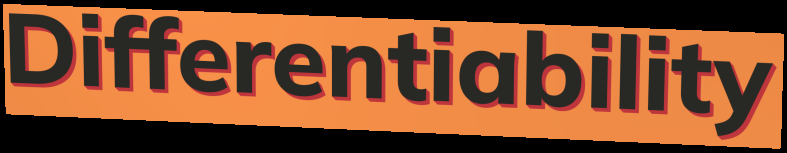
Differentiability